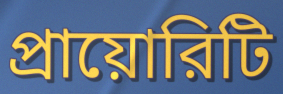
প্রায়োরিটি